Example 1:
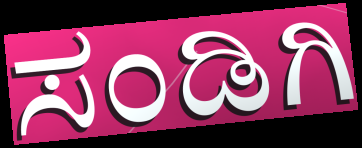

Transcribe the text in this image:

ಸಂಡಿಗಿ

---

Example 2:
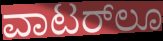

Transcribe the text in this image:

ವಾಟರ್‌ಲೂ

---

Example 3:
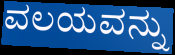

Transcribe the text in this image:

ವಲಯವನ್ನು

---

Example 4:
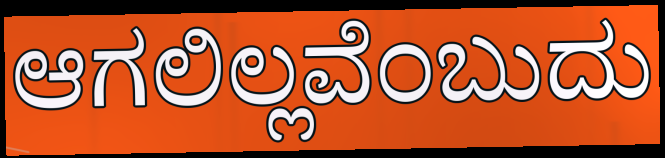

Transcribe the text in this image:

ಆಗಲಿಲ್ಲವೆಂಬುದು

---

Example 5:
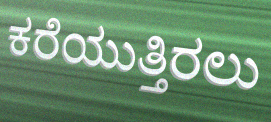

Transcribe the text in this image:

ಕರೆಯುತ್ತಿರಲು